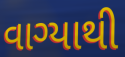
વાગ્યાથી